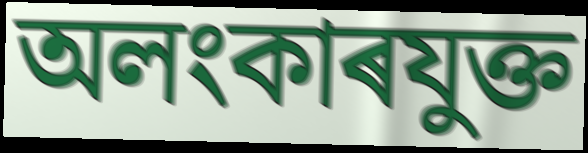
অলংকাৰযুক্ত